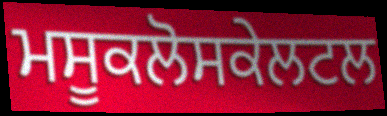
ਮਸੂਕਲੋਸਕੇਲਟਲ